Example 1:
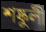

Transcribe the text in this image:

শষ্কুলী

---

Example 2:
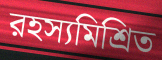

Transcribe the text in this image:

রহস্যমিশ্রিত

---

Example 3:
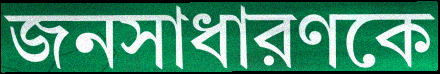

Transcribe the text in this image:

জনসাধারণকে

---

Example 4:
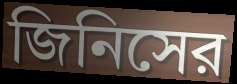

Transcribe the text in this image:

জিনিসের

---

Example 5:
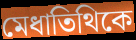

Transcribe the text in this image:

মেধাতিথিকে